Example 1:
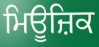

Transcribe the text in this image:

ਮਿਊਜ਼ਿਕ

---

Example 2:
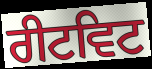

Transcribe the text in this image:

ਰੀਟਵਿਟ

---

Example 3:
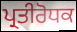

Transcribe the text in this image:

ਪ੍ਰਤੀਰੋਧਕ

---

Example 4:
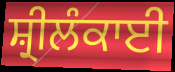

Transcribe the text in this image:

ਸ਼੍ਰੀਲੰਕਾਈ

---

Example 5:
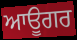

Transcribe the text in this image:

ਆਊਗਰ